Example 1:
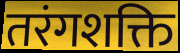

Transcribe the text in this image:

तरंगशक्ति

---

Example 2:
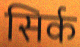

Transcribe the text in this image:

सिर्क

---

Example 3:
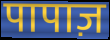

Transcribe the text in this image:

पापाज़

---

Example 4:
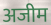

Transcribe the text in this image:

अजीम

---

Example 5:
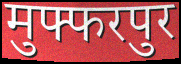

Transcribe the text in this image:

मुफ्फरपुर